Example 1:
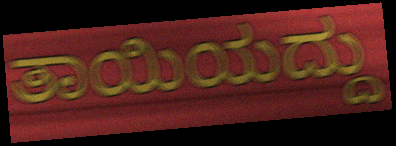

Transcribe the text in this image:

ತಾಯಿಯದ್ದು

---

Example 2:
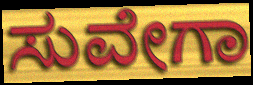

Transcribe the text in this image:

ಸುವೇಗಾ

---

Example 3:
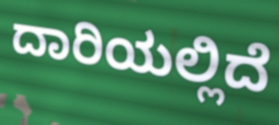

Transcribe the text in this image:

ದಾರಿಯಲ್ಲಿದೆ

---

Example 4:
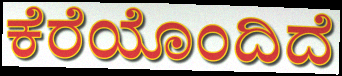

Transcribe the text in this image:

ಕೆರೆಯೊಂದಿದೆ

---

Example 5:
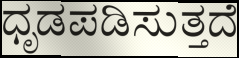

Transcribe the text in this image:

ಧೃಡಪಡಿಸುತ್ತದೆ